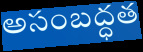
అసంబద్ధత